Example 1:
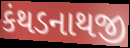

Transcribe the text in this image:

કંથડનાથજી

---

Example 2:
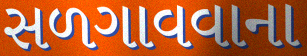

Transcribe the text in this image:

સળગાવવાના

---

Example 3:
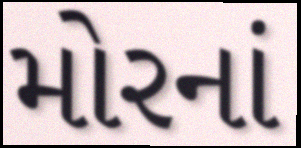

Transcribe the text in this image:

મોરનાં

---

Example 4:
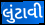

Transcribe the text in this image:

લુંટાવી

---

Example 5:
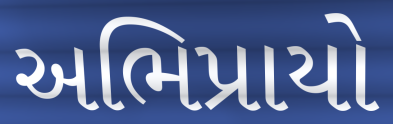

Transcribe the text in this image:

અભિપ્રાયો